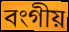
বংগীয়